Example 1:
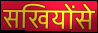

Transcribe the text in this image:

सखियोंसे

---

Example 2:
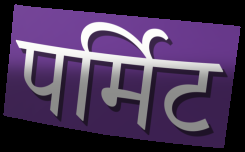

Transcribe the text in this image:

पर्मिट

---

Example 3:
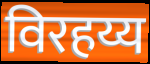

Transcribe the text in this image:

विरहय्य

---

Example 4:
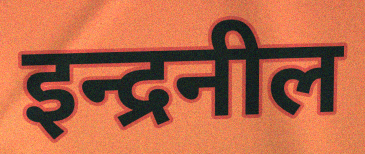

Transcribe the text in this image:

इन्द्रनील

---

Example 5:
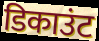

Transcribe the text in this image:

डिकाउंट